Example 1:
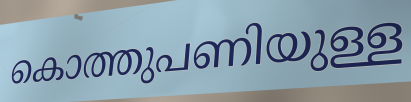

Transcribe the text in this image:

കൊത്തുപണിയുള്ള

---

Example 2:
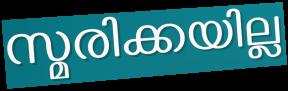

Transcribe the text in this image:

സ്മരിക്കയില്ല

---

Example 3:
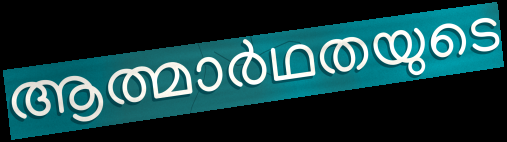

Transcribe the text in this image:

ആത്മാർഥതയുടെ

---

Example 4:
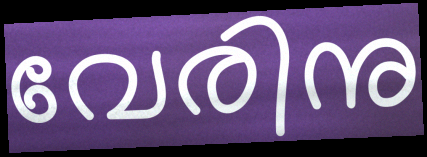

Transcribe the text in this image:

വേരിനു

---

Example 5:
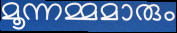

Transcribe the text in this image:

മൂന്നമ്മമാരും